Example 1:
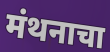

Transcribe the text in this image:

मंथनाचा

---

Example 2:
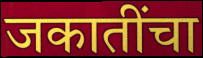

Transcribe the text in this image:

जकातींचा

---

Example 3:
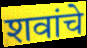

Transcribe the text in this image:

शवांचे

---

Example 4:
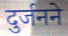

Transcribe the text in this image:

दुर्जनने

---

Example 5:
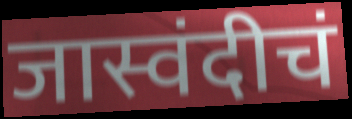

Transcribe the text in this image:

जास्वंदीचं